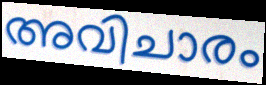
അവിചാരം